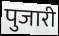
पुजारी